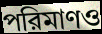
পরিমাণও